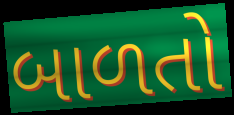
બાળતો